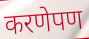
करणेपण